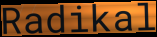
Radikal